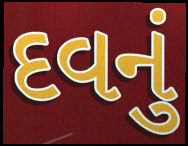
દવનું